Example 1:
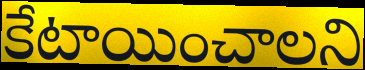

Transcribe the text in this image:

కేటాయించాలని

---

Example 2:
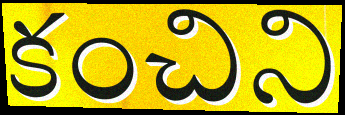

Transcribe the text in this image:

కంచిని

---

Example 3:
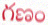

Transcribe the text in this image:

గణం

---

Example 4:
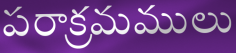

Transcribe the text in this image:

పరాక్రమములు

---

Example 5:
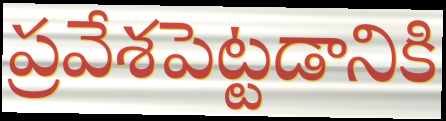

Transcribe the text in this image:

ప్రవేశపెట్టడానికి